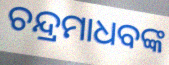
ଚନ୍ଦ୍ରମାଧବଙ୍କ